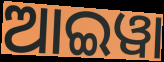
ଆଇୱା